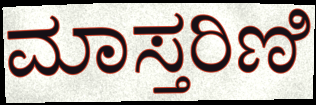
ಮಾಸ್ತರಿಣಿ